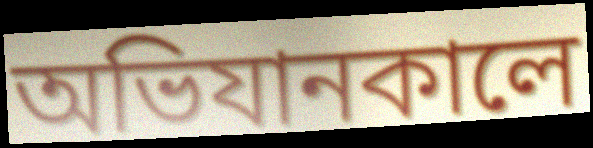
অভিযানকালে